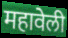
महावेली